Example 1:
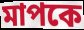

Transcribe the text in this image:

মাপকে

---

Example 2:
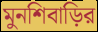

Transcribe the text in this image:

মুনশিবাড়ির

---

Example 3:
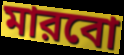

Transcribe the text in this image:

মারবো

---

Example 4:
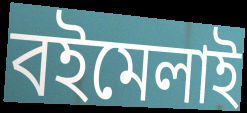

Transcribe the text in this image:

বইমেলাই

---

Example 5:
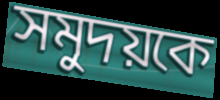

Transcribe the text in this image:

সমুদয়কে